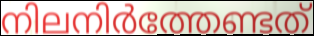
നിലനിർത്തേണ്ടത്